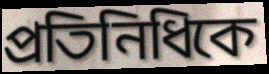
প্রতিনিধিকে